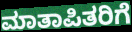
ಮಾತಾಪಿತರಿಗೆ